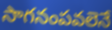
సాగనంపవలెనే